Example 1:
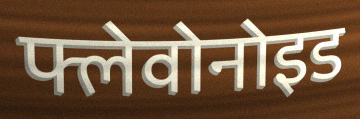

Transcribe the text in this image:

फ्लेवोनोइड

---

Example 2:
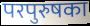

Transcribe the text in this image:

परपुरुषका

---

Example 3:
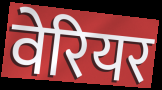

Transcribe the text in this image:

वेरियर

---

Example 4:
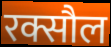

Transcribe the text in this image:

रक्सौल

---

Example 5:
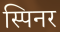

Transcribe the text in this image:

स्पिनर